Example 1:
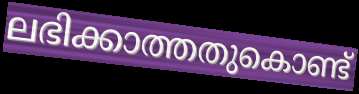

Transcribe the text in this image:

ലഭിക്കാത്തതുകൊണ്ട്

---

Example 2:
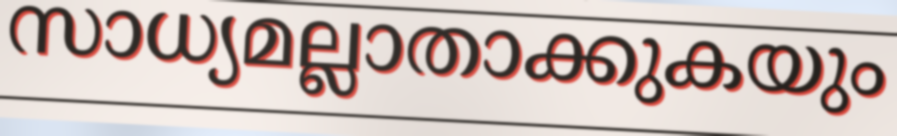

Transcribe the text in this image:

സാധ്യമല്ലാതാക്കുകയും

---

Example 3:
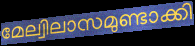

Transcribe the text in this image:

മേല്വിലാസമുണ്ടാക്കി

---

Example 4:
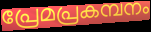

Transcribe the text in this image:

പ്രേമപ്രകമ്പനം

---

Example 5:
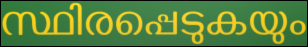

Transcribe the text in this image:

സ്ഥിരപ്പെടുകയും